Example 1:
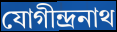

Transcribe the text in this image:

যোগীন্দ্রনাথ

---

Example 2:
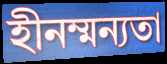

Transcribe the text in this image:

হীনম্মন্যতা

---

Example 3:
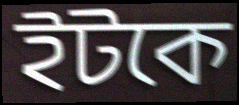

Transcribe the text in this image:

ইটকে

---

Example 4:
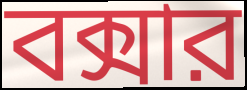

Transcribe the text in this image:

বক্সার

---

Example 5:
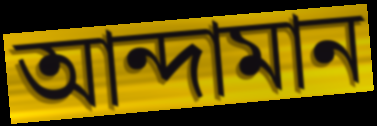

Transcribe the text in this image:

আন্দামান